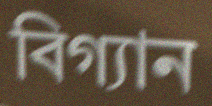
বিগ্যান